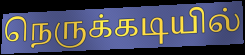
நெருக்கடியில்